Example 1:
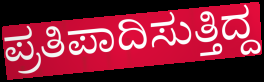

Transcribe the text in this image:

ಪ್ರತಿಪಾದಿಸುತ್ತಿದ್ದ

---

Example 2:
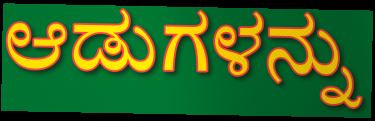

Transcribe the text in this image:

ಆಡುಗಳನ್ನು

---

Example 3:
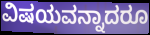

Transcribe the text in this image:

ವಿಷಯವನ್ನಾದರೂ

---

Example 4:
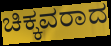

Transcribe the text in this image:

ಚಿಕ್ಕವರಾದ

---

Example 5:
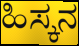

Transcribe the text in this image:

ಹಿಸ್ಕನ